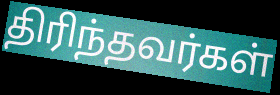
திரிந்தவர்கள்